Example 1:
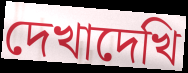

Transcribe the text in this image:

দেখাদেখি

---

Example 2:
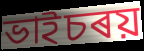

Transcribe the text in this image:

ভাইচৰয়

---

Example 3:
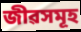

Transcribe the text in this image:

জীৱসমূহ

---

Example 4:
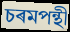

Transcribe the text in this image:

চৰমপন্থী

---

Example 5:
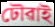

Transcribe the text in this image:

ঢৌৱাই